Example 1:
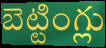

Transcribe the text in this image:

బెట్టింగ్లు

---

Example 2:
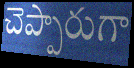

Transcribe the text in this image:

చెప్పారుగా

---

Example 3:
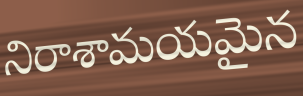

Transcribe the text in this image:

నిరాశామయమైన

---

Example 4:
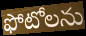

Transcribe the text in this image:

ఫోటోలను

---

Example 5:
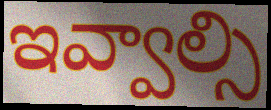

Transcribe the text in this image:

ఇవ్వాల్సి